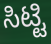
ಸಿಟ್ಟಿ